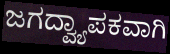
ಜಗದ್ವ್ಯಾಪಕವಾಗಿ